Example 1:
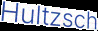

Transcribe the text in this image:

Hultzsch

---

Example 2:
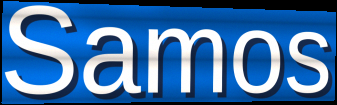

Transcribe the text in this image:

Samos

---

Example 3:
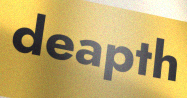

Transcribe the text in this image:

deapth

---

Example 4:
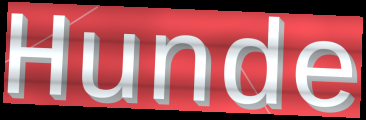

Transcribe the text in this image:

Hunde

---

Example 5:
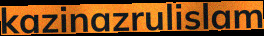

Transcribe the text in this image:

kazinazrulislam